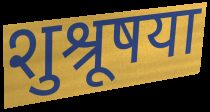
शुश्रूषया